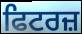
ਫਿਟਰਜ਼